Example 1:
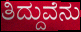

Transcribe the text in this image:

ತಿದ್ದುವೆನು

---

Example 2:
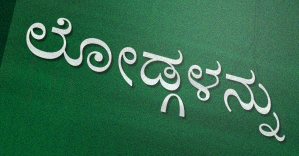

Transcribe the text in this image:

ಲೋಡ್ಗಳನ್ನು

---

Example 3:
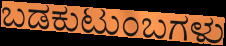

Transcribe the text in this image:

ಬಡಕುಟುಂಬಗಳು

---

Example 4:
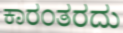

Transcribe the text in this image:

ಕಾರಂತರದು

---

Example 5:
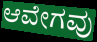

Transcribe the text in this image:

ಆವೇಗವು